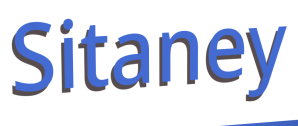
Sitaney